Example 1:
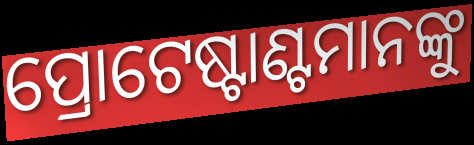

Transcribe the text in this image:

ପ୍ରୋଟେଷ୍ଟାଣ୍ଟମାନଙ୍କୁ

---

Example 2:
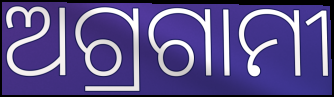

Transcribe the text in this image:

ଅଗ୍ରଗାମୀ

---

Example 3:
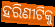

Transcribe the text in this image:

ହରିଣୀଟିକୁ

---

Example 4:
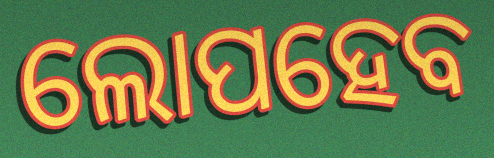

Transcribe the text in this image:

ଲୋପହେବ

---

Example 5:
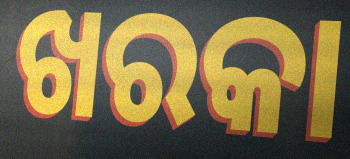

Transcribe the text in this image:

ଖରକା